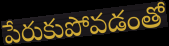
పేరుకుపోవడంతో